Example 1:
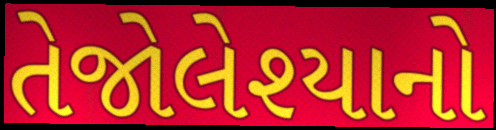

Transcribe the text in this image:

તેજોલેશ્યાનો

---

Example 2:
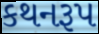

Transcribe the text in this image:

કથનરૂપ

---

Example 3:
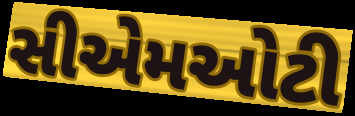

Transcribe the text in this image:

સીએમઓટી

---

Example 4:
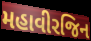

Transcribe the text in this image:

મહાવીરજિન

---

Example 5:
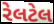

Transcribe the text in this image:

રેલટેલ